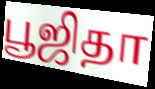
பூஜிதா